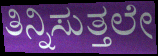
ತಿನ್ನಿಸುತ್ತಲೇ